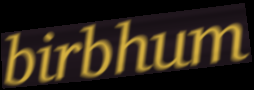
birbhum